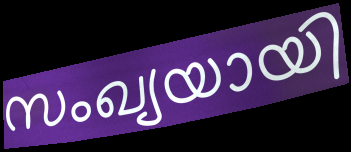
സംഖ്യയായി